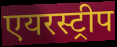
एयरस्ट्रीप